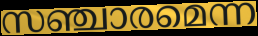
സഞ്ചാരമെന്ന